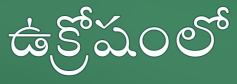
ఉక్రోషంలో